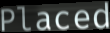
Placed